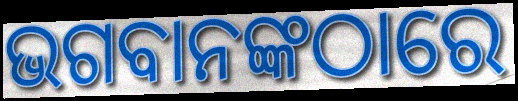
ଭଗବାନଙ୍କଠାରେ